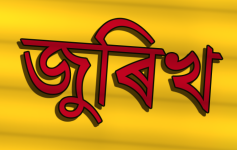
জুৰিখ